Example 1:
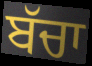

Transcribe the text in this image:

ਬੱਚਾ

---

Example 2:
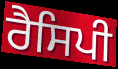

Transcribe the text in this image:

ਰੈਸਿਪੀ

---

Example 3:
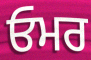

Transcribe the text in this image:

ਓਮਰ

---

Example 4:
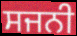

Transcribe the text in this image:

ਸਜਨੀ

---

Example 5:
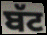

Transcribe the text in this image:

ਬੱਟ